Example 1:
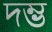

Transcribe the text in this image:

দম্ভ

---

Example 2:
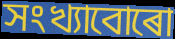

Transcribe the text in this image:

সংখ্যাবোৰো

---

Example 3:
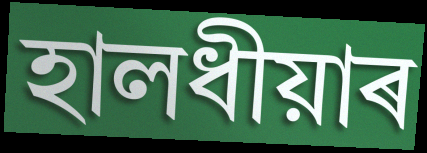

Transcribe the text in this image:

হালধীয়াৰ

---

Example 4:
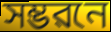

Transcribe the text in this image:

সম্ভৱনে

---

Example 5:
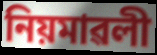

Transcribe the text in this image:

নিয়মাৱলী